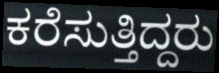
ಕರೆಸುತ್ತಿದ್ದರು